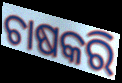
ଚାଷକରି